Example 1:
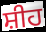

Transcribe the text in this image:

ਸ਼ੀਹ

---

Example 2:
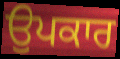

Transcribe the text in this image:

ਉਪਕਾਰ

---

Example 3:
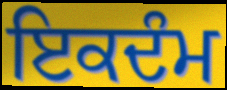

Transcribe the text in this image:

ਇਕਦੰਮ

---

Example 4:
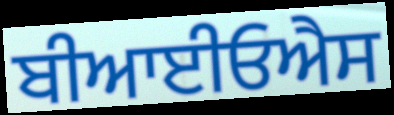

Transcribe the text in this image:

ਬੀਆਈਓਐਸ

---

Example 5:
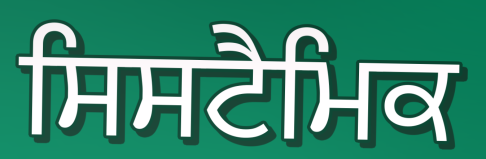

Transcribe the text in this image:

ਸਿਸਟੈਮਿਕ